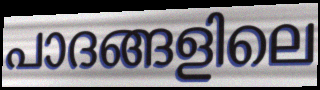
പാദങ്ങളിലെ